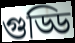
গুড্ডি